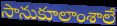
సానుకూలాంశాలే